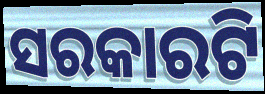
ସରକାରଟି